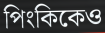
পিংকিকেও